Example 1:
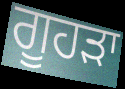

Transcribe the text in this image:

ਗੂਹੜਾ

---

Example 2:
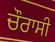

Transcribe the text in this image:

ਚੌਰਾਸੀ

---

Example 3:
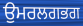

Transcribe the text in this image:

ਉੁਮਰਲਗਭਗ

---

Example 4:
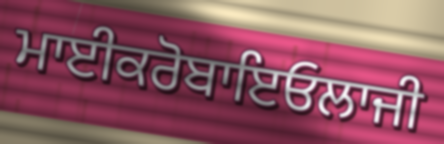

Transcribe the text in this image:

ਮਾਈਕਰੋਬਾਇਓਲਾਜੀ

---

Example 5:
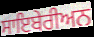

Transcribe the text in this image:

ਸਾਇਬੇਰੀਅਨ